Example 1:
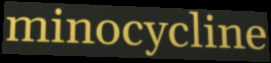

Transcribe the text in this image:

minocycline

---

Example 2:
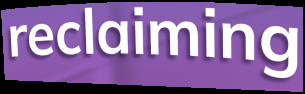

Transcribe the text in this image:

reclaiming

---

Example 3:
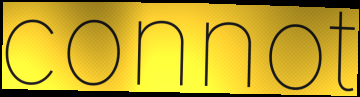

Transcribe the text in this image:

connot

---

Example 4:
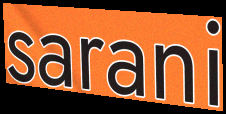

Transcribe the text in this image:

sarani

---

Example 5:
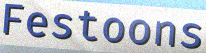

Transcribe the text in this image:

Festoons